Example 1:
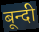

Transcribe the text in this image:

बून्दी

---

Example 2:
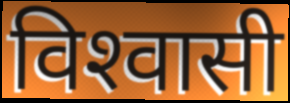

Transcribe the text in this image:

विश्‍वासी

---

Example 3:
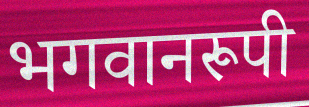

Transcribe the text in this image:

भगवानरूपी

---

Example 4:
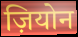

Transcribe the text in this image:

ज़ियोन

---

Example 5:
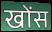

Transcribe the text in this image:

खोंस